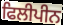
ਫਿਲੀਪੀਨ